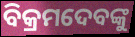
ବିକ୍ରମଦେବଙ୍କୁ